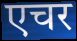
एचर